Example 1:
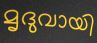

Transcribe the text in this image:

മൃദുവായി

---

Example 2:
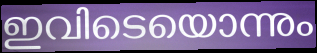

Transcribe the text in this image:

ഇവിടെയൊന്നും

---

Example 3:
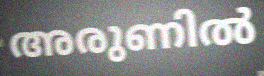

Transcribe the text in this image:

അരുണിൽ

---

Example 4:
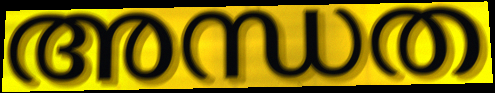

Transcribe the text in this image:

അന്ധത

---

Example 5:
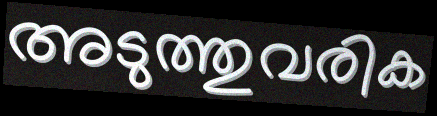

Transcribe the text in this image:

അടുത്തുവരിക